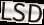
LSD